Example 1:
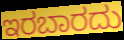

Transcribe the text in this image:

ಇರಬಾರದು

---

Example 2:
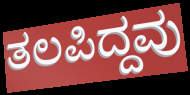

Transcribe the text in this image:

ತಲಪಿದ್ದವು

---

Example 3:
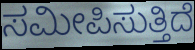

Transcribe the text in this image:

ಸಮೀಪಿಸುತ್ತಿದೆ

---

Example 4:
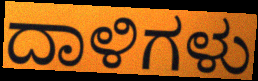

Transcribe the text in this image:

ದಾಳಿಗಳು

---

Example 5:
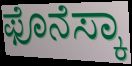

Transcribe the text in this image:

ಫೊನೆಸ್ಕಾ